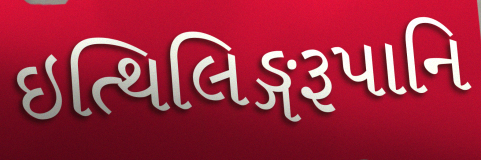
ઇત્થિલિઙ્ગરૂપાનિ